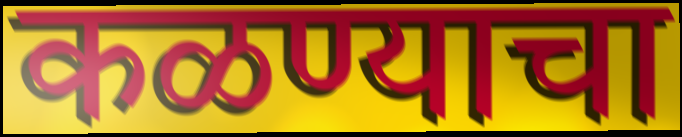
कळण्याचा